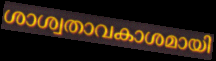
ശാശ്വതാവകാശമായി